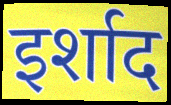
इर्शाद